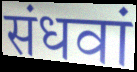
संधवां